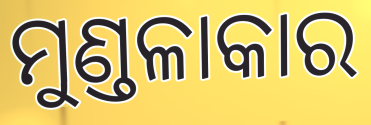
ମୁଣ୍ଡଳାକାର